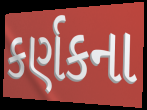
કર્ણકના